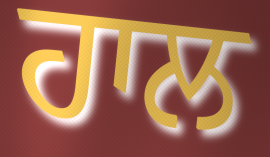
ਹਾਲ